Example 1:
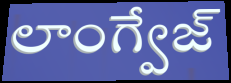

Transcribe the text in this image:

లాంగ్వేజ్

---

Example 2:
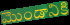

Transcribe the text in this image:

మొండానికి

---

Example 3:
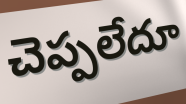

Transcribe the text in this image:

చెప్పలేదూ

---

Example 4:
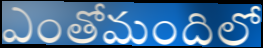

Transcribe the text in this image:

ఎంతోమందిలో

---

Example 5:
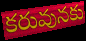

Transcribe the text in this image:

కరువునకు